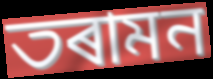
তৰামন